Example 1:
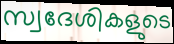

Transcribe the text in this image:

സ്വദേശികളുടെ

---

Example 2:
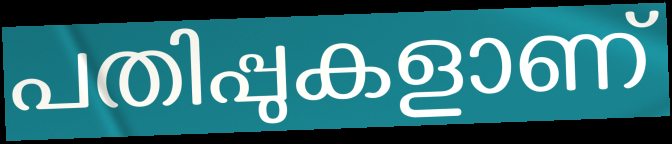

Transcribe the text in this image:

പതിപ്പുകളാണ്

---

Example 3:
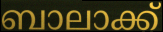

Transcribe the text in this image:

ബാലാക്ക്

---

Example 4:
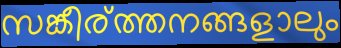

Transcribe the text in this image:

സങ്കീര്ത്തനങ്ങളാലും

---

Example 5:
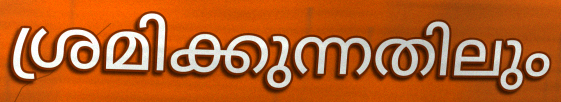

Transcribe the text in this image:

ശ്രമിക്കുന്നതിലും